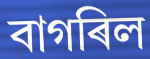
বাগৰিল